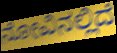
ನೋವಿನಲ್ಲಿದೆ